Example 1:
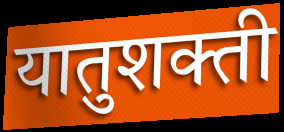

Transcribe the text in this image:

यातुशक्ती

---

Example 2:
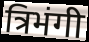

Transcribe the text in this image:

त्रिभंगी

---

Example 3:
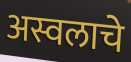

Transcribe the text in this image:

अस्वलाचे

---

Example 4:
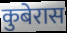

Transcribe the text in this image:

कुबेरास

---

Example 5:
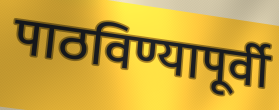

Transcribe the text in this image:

पाठविण्यापूर्वी